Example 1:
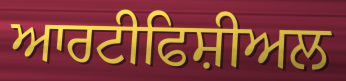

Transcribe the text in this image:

ਆਰਟੀਫਿਸ਼ੀਅਲ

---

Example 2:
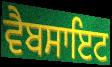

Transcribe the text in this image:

ਵੈਬਸਾਇਟ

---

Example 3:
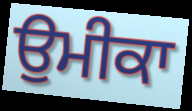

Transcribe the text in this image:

ਉਮੀਕਾ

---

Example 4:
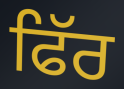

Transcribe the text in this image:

ਫਿੱਰ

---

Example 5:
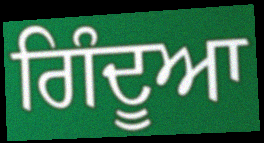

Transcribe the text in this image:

ਗਿੰਦੂਆ